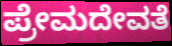
ಪ್ರೇಮದೇವತೆ